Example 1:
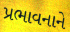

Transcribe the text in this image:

પ્રભાવનાને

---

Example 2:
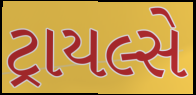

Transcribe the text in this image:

ટ્રાયલ્સે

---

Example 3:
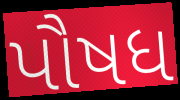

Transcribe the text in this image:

પૌષધ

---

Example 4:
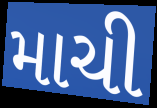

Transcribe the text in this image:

માચી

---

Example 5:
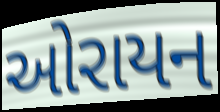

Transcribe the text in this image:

ઓરાયન